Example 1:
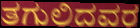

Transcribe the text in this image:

ತಗುಲಿದವರ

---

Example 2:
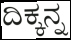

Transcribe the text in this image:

ದಿಕ್ಕನ್ನ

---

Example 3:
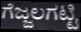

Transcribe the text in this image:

ಗೆಜ್ಜಲಗಟ್ಟಿ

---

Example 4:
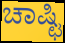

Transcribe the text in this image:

ಚಾಷ್ಟಿ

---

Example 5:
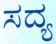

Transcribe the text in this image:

ಸದ್ಯ